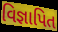
વિજ્ઞાપિત